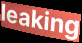
leaking